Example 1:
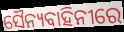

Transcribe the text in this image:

ସୈନ୍ଯବାହିନୀରେ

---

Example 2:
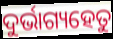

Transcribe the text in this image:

ଦୁର୍ଭାଗ୍ୟହେତୁ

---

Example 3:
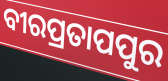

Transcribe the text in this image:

ବୀରପ୍ରତାପପୁର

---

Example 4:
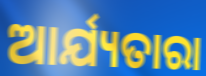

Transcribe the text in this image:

ଆର୍ଯ୍ୟତାରା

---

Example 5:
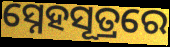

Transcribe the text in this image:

ସ୍ନେହସୂତ୍ରରେ